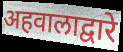
अहवालाद्वारे